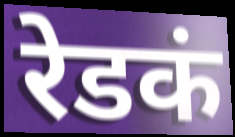
रेडकं